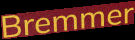
Bremmer